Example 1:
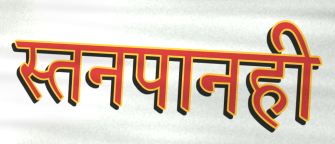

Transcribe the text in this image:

स्तनपानही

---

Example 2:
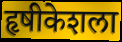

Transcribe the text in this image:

हृषीकेशला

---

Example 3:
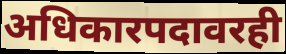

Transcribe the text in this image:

अधिकारपदावरही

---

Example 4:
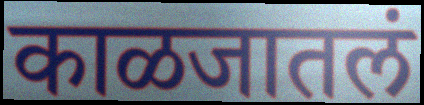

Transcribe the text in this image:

काळजातलं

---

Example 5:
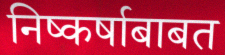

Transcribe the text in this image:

निष्कर्षाबाबत